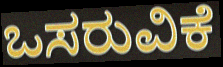
ಒಸರುವಿಕೆ